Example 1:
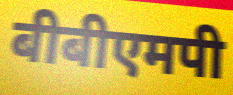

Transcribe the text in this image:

बीबीएमपी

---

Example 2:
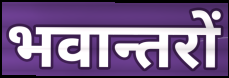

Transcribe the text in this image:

भवान्तरों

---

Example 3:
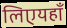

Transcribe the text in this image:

लिएयहाँ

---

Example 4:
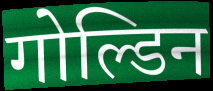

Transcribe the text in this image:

गोल्डिन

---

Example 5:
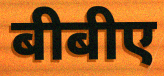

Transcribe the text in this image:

बीबीए